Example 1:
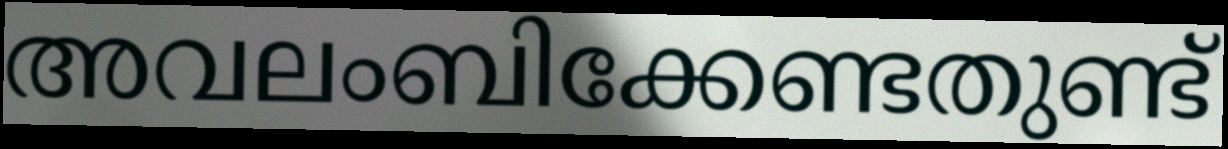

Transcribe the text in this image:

അവലംബിക്കേണ്ടതുണ്ട്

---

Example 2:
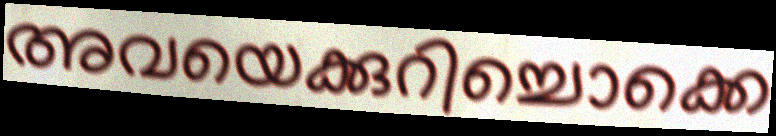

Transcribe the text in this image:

അവയെക്കുറിച്ചൊക്കെ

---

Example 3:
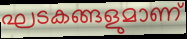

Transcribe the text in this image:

ഘടകങ്ങളുമാണ്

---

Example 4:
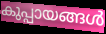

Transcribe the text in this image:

കുപ്പായങ്ങൾ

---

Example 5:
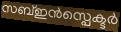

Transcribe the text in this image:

സബ്ഇൻസ്പെക്ടർ